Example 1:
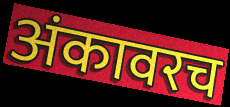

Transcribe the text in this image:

अंकावरच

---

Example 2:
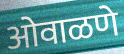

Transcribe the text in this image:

ओवाळणे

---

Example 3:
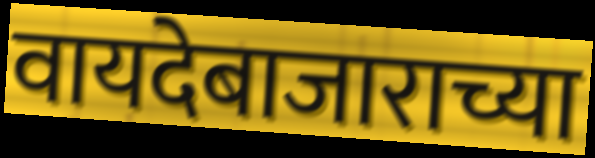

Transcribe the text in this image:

वायदेबाजाराच्या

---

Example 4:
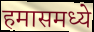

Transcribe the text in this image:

हमासमध्ये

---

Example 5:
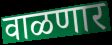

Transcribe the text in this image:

वाळणार